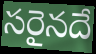
సరైనదే